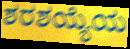
ಶರಶಯ್ಯೆಯ